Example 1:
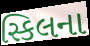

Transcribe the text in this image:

સ્કિલના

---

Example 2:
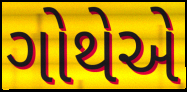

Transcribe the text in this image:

ગોથેએ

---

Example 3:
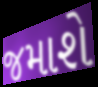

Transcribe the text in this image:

જમાશે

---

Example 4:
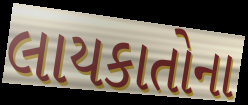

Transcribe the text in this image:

લાયકાતોના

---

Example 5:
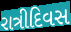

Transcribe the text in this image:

રાત્રીદિવસ